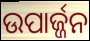
ଉପାର୍ଜ୍ଜନ